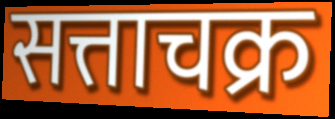
सत्ताचक्र